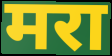
मरा